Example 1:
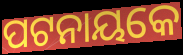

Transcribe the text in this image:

ପଟନାୟକେ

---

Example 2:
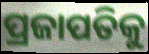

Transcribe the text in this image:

ପ୍ରଜାପତିକୁ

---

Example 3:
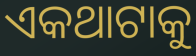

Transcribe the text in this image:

ଏକଥାଟାକୁ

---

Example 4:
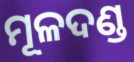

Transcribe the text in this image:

ମୂଳଦଣ୍ଡ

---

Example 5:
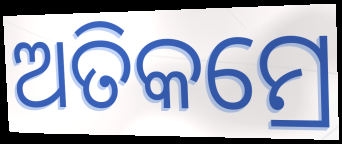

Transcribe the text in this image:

ଅତିକମ୍ରେ